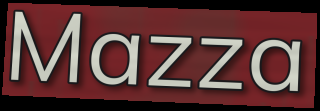
Mazza